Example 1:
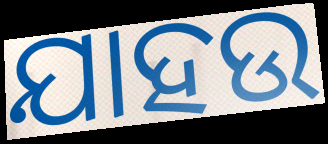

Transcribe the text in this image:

ଯାହଉ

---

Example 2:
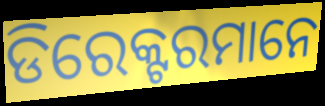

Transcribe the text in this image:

ଡିରେକ୍ଟରମାନେ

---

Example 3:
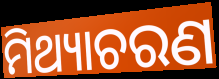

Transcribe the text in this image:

ମିଥ୍ୟାଚରଣ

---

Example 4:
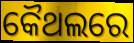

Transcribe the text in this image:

କୈଥଲରେ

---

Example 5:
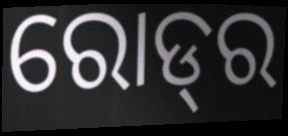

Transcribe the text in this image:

ରୋଡ୍‌ର